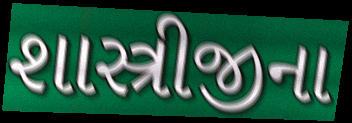
શાસ્ત્રીજીના